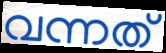
വന്നത്